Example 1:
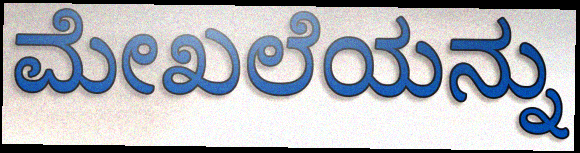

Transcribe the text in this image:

ಮೇಖಲೆಯನ್ನು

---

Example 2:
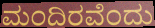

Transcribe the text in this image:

ಮಂದಿರವೆಂದು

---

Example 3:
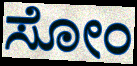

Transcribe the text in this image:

ಸೋಂ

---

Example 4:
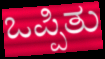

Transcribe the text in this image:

ಒಪ್ಪಿತು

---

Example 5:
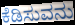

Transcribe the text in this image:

ಕೆಡಿಸುವನು